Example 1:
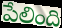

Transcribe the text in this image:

పేలింది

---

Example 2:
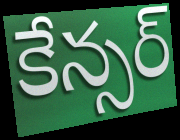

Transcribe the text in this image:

కేన్సర్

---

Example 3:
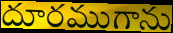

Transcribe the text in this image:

దూరముగాను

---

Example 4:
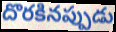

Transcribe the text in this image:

దొరకినప్పుడు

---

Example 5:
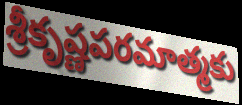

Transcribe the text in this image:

శ్రీకృష్ణపరమాత్మకు